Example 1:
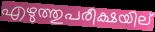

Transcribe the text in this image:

എഴുത്തുപരീക്ഷയില്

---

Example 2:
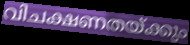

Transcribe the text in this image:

വിചക്ഷണതയ്ക്കും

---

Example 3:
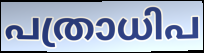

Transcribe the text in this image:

പത്രാധിപ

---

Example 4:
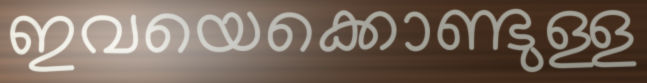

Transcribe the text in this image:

ഇവയെക്കൊണ്ടുള്ള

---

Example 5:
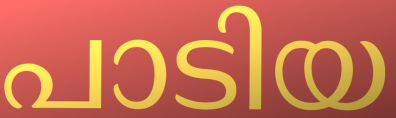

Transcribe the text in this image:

പാടിയ